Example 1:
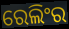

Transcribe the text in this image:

ରେଲିଂର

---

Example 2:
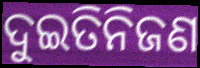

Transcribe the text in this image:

ଦୁଇତିନିଜଣ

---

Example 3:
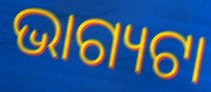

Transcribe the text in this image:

ଭାଗ୍ୟଟା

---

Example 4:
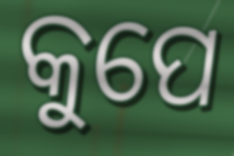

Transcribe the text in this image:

କୁପେ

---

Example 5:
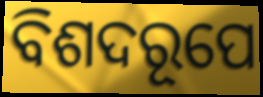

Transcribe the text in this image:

ବିଶଦରୂପେ